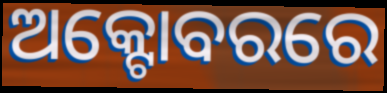
ଅକ୍ଟୋବରରେ